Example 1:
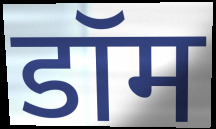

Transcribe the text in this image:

डॉम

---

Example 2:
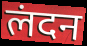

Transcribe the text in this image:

लंदन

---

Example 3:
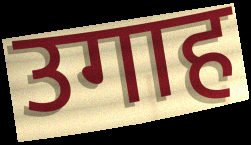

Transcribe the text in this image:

उगाह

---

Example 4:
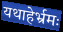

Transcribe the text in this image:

यथाहेर्भ्रमः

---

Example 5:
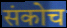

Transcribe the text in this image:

संकोच